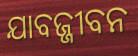
ଯାବଜ୍ଜୀବନ